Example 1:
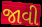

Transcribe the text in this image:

જાવી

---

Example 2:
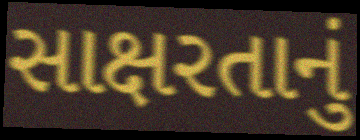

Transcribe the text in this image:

સાક્ષરતાનું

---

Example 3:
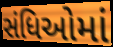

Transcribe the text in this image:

સંધિઓમાં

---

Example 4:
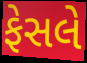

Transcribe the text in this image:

ફેસલે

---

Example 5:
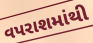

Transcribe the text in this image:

વપરાશમાંથી